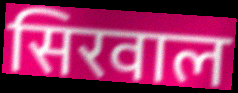
सिरवाल